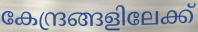
കേന്ദ്രങ്ങളിലേക്ക്